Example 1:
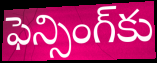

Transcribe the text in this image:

ఫెన్సింగ్‌కు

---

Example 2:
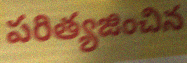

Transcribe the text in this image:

పరిత్యజించిన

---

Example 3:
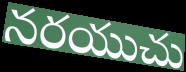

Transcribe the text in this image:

నరయుచు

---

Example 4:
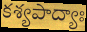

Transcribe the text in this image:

కశ్యపాద్యాః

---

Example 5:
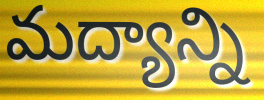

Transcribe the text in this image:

మద్యాన్ని